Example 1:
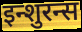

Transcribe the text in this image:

इन्शुरन्स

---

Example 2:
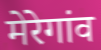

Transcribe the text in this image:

मेरेगांव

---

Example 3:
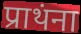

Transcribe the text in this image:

प्राथंना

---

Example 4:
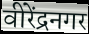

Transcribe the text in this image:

वीरेंद्रनगर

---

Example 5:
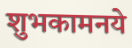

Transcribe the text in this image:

शुभकामनये